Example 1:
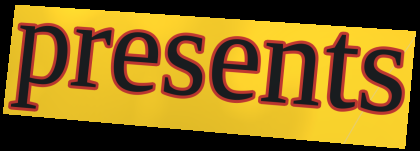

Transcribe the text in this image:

presents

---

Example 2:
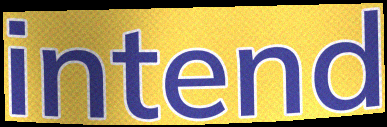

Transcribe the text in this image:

intend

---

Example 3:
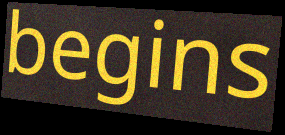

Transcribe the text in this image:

begins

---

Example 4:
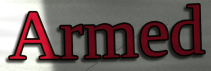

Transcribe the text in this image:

Armed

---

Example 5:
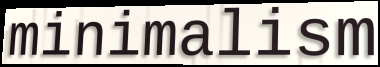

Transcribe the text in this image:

minimalism